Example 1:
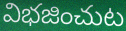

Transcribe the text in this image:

విభజించుట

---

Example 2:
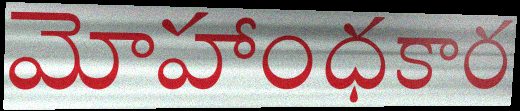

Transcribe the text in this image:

మోహాంధకార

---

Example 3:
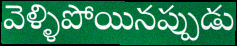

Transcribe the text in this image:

వెళ్ళిపోయినప్పుడు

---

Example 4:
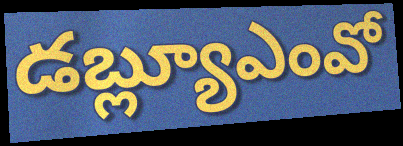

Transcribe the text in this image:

డబ్ల్యూఎంవో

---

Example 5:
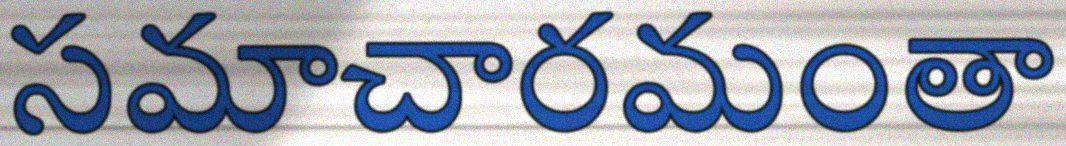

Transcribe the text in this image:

సమాచారమంతా